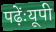
पढ़ेंःयूपी